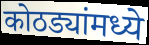
कोठड्यांमध्ये